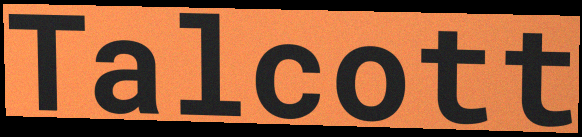
Talcott